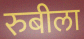
रुबीला